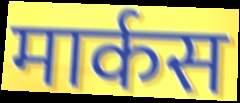
मार्कस